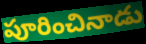
పూరించినాడు